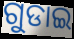
ଗୁଡାଇ